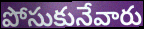
పోసుకునేవారు